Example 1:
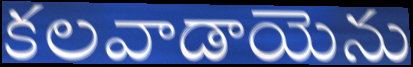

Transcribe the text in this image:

కలవాడాయెను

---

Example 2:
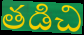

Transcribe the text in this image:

తడిచి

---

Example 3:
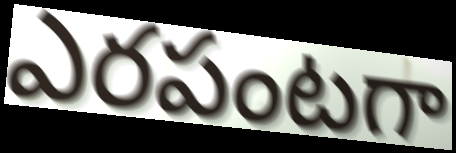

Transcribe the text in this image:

ఎరపంటగా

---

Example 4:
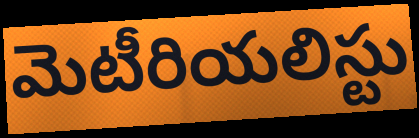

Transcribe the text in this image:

మెటీరియలిస్టు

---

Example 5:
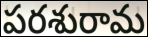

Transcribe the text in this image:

పరశురామ